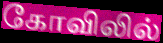
கோவிலில்